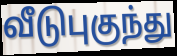
வீடுபுகுந்து